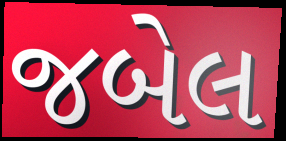
જબેલ